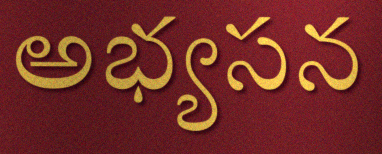
అభ్యసన